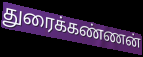
துரைக்கண்ணன்